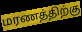
மரணத்திற்கு